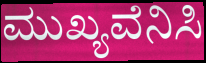
ಮುಖ್ಯವೆನಿಸಿ